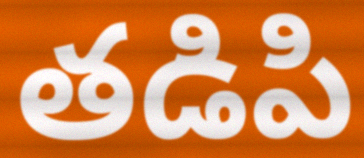
తడిపి